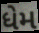
ધેમ